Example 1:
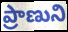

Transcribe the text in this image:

ప్రాణుని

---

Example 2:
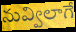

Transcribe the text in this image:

నువ్విలాగే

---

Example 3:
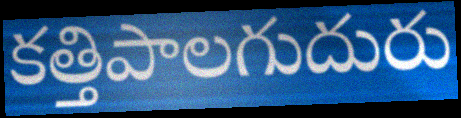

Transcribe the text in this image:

కత్తిపాలగుదురు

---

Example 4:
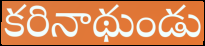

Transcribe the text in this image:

కరినాథుండు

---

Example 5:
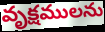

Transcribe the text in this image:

వృక్షములను